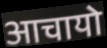
आचायो